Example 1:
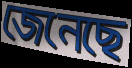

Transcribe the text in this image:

জেনেছে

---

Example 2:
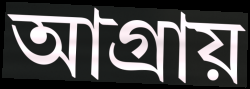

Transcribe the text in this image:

আগ্রায়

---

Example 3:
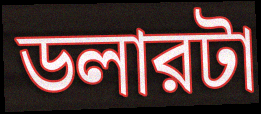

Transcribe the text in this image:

ডলারটা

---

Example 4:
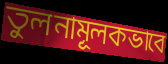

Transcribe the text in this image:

তুলনামূলকভাবে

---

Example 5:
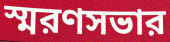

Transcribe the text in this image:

স্মরণসভার